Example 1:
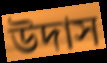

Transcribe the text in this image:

উদাস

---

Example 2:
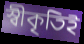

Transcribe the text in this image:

স্বীকৃতিই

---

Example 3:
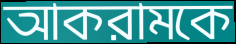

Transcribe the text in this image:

আকরামকে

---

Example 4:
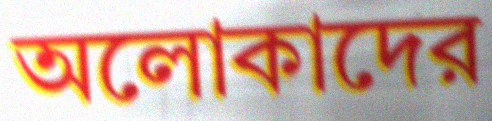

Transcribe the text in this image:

অলোকাদের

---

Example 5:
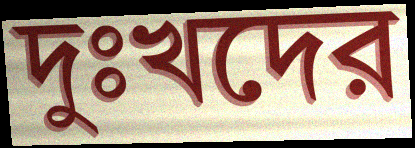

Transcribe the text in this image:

দুঃখদের